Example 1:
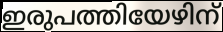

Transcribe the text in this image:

ഇരുപത്തിയേഴിന്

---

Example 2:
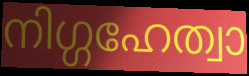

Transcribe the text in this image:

നിഗ്ഗഹേത്വാ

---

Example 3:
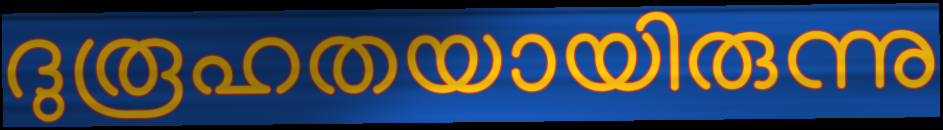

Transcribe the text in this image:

ദുരൂഹതയായിരുന്നു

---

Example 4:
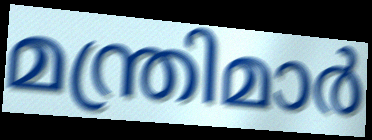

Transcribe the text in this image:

മന്ത്രിമാർ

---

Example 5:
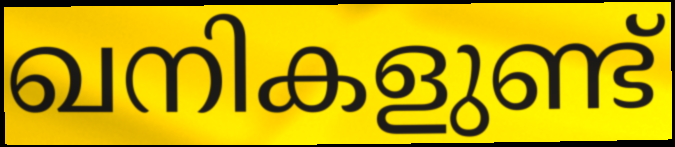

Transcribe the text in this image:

ഖനികളുണ്ട്